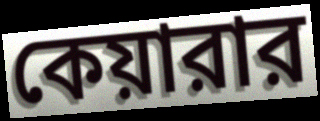
কেয়ারার